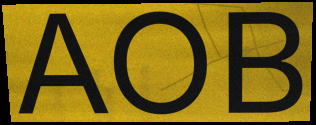
AOB